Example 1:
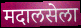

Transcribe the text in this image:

मदालसेला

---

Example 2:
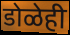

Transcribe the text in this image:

डोळेही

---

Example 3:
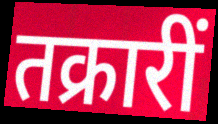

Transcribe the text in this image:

तक्रारीं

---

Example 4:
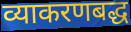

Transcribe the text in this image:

व्याकरणबद्ध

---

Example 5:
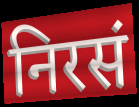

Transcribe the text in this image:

निरसं